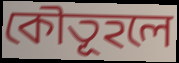
কৌতূহলে